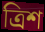
ত্রিশ